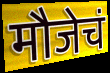
मौजेचं